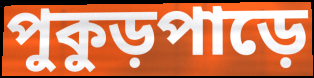
পুকুড়পাড়ে